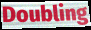
Doubling